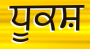
ਧੂਕਸ਼